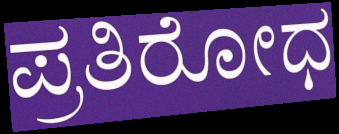
ಪ್ರತಿರೋಧ